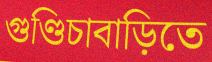
গুণ্ডিচাবাড়িতে